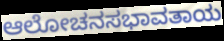
ಆಲೋಚನಸಭಾವತಾಯ